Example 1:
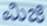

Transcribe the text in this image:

ಮಿಜಿ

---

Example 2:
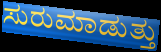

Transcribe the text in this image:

ಸುರುಮಾಡುತ್ತು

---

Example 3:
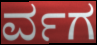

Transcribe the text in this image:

ರ್ವಗ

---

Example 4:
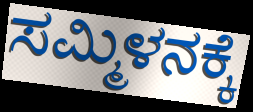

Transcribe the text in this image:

ಸಮ್ಮಿಳನಕ್ಕೆ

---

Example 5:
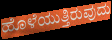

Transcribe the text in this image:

ಹೊಳೆಯುತ್ತಿರುವುದು